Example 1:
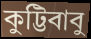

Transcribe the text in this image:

কুট্টিবাবু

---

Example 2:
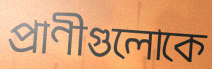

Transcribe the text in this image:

প্রাণীগুলোকে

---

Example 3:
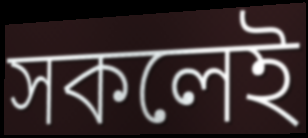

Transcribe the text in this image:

সকলেই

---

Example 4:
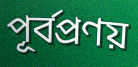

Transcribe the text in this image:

পূর্বপ্রণয়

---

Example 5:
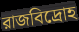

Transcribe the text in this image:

রাজবিদ্রোহ